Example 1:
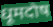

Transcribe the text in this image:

धूमदोष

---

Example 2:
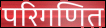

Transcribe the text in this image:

परिगणित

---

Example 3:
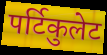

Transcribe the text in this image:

पर्टिकुलेट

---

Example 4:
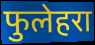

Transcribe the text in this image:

फुलेहरा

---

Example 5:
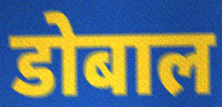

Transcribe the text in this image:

डोबाल